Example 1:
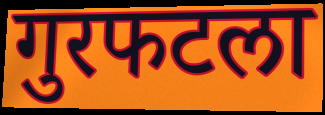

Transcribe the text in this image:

गुरफटला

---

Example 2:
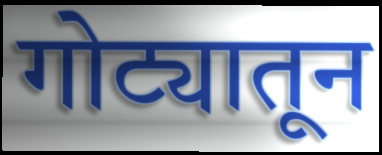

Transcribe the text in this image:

गोट्यातून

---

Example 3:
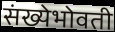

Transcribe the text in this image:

संख्येभोवती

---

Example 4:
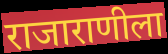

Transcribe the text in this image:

राजाराणीला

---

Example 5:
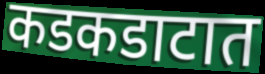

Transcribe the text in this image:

कडकडाटात